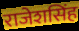
राजेशसिंह